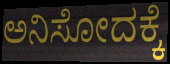
ಅನಿಸೋದಕ್ಕೆ